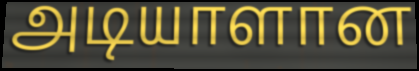
அடியாளான